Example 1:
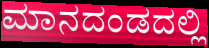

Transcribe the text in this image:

ಮಾನದಂಡದಲ್ಲಿ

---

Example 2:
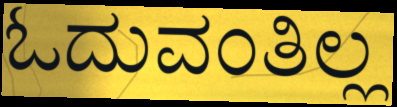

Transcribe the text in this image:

ಓದುವಂತಿಲ್ಲ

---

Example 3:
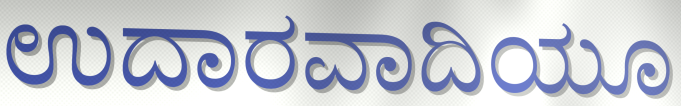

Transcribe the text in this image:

ಉದಾರವಾದಿಯೂ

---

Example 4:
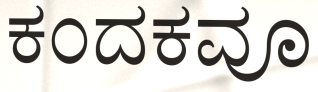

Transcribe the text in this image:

ಕಂದಕವೂ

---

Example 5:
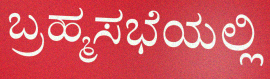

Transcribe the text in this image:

ಬ್ರಹ್ಮಸಭೆಯಲ್ಲಿ